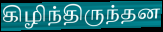
கிழிந்திருந்தன